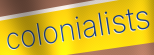
colonialists